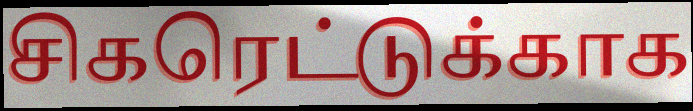
சிகரெட்டுக்காக